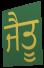
ਜੈਤੂ